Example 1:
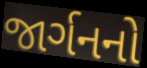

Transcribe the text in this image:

જાર્ગનનો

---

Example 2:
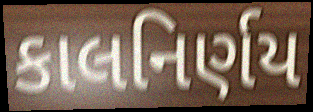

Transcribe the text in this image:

કાલનિર્ણય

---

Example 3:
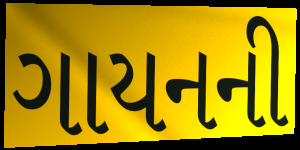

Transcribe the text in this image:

ગાયનની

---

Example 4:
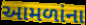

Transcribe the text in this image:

આમળાંના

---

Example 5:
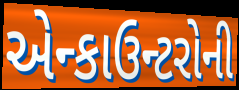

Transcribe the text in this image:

એન્કાઉન્ટરોની